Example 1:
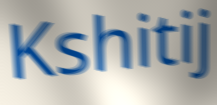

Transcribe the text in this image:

Kshitij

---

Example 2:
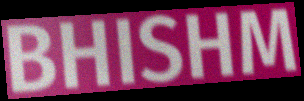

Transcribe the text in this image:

BHISHM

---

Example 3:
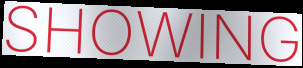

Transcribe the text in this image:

SHOWING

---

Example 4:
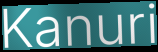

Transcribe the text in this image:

Kanuri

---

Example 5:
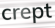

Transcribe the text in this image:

crept